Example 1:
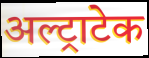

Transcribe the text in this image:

अल्ट्राटेक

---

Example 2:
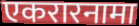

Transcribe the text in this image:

एकरारनामा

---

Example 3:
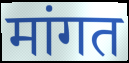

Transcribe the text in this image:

मांगत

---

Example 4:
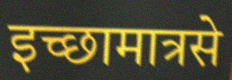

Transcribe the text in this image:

इच्छामात्रसे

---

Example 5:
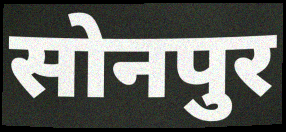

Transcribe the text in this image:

सोनपुर